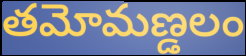
తమోమణ్డలం